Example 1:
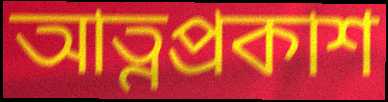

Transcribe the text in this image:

আত্নপ্রকাশ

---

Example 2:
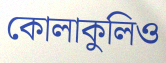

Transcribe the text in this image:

কোলাকুলিও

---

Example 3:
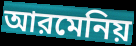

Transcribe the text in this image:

আরমেনিয়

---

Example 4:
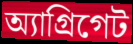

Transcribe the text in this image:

অ্যাগ্রিগেট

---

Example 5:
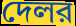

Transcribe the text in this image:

দেলর